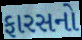
ફારસનો